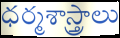
ధర్మశాస్త్రాలు